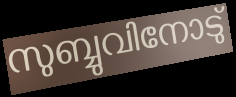
സുബ്ബുവിനോടു്